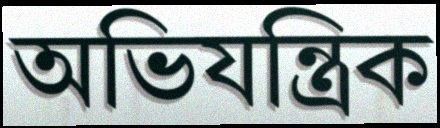
অভিযন্ত্ৰিক